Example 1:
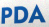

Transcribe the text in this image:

PDA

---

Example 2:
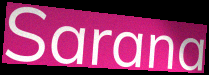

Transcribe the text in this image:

Sarana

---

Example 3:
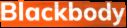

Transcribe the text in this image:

Blackbody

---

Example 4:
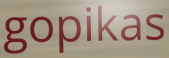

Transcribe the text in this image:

gopikas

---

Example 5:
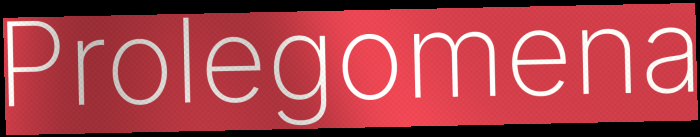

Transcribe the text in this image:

Prolegomena